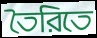
তৈরিতে